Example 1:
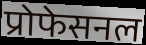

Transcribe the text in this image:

प्रोफेसनल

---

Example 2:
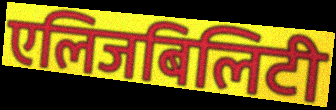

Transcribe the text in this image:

एलिजबिलिटी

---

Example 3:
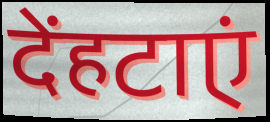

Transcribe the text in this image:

देंहटाएं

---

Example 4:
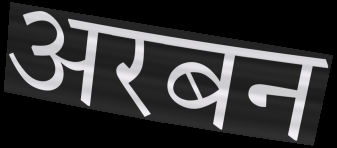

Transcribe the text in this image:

अरबन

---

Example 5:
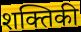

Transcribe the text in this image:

शक्तिकी